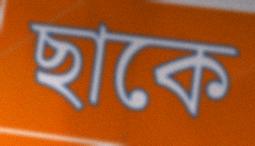
ছাকে